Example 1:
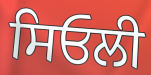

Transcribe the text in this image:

ਸਿਓਲੀ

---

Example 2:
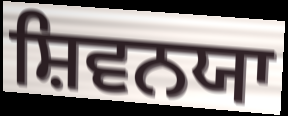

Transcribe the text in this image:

ਸ਼ਿਵਨਯਾ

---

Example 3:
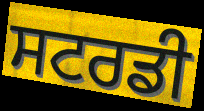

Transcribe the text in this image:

ਸਟਰਡੀ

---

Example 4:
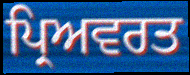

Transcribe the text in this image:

ਪ੍ਰਿਅਵਰਤ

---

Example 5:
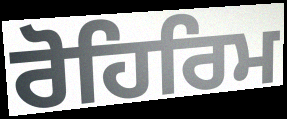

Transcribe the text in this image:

ਰੋਹਿਰਿਮ